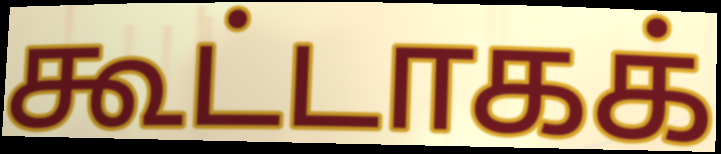
கூட்டாகக்